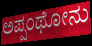
ಅಪ್ಪಂಥೋನು